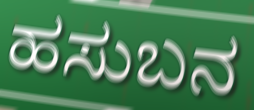
ಹಸುಬನ